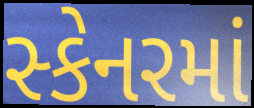
સ્કેનરમાં